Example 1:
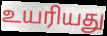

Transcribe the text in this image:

உயரியது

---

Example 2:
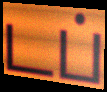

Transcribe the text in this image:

டப்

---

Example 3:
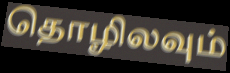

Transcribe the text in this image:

தொழிலவும்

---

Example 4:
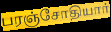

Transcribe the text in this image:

பரஞ்சோதியார்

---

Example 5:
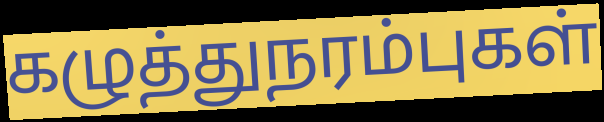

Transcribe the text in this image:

கழுத்துநரம்புகள்